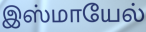
இஸ்மாயேல்